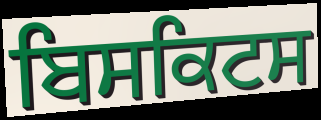
ਬਿਸਕਿਟਸ